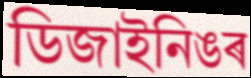
ডিজাইনিঙৰ